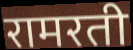
रामरती